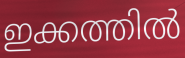
ഇക്കത്തിൽ